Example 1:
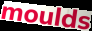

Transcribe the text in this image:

moulds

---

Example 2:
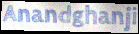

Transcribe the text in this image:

Anandghanji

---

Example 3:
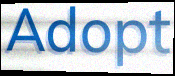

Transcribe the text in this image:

Adopt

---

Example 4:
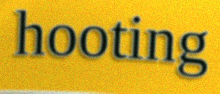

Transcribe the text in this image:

hooting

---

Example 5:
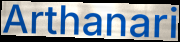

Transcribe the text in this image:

Arthanari